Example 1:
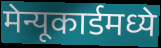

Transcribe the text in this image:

मेन्यूकार्डमध्ये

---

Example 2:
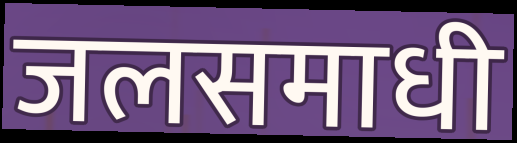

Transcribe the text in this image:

जलसमाधी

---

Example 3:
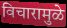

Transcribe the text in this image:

विचारामुळे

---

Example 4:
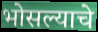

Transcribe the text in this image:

भोसल्याचे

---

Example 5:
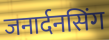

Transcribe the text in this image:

जनार्दनसिंग